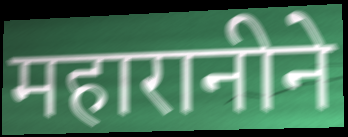
महारानीने